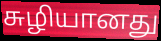
சுழியானது